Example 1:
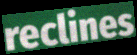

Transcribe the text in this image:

reclines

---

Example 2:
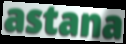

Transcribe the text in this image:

astana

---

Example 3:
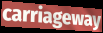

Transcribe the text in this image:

carriageway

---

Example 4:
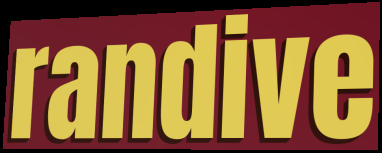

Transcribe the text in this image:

randive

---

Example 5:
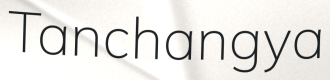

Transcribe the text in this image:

Tanchangya